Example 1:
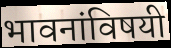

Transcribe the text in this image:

भावनांविषयी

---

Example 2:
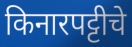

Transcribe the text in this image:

किनारपट्टीचे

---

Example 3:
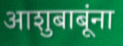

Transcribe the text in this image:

आशुबाबूंना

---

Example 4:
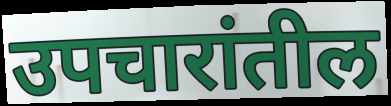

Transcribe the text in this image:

उपचारांतील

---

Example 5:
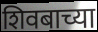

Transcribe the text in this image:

शिवबाच्या